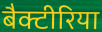
बैक्टीरिया